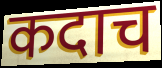
कदाच